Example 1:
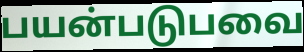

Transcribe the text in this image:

பயன்படுபவை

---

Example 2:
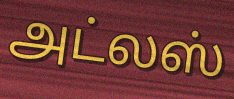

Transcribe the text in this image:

அட்லஸ்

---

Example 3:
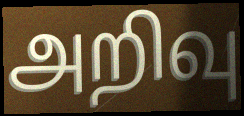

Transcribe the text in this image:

அறிவு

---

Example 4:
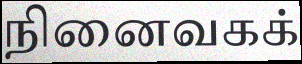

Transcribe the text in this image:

நினைவகக்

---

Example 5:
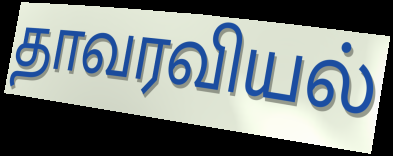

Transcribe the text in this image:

தாவரவியல்